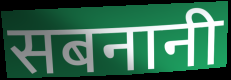
सबनानी